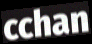
cchan